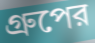
গ্রুপের